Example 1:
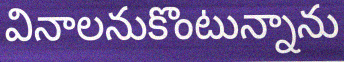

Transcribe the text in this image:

వినాలనుకొంటున్నాను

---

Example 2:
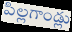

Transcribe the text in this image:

పిల్లగాండ్లు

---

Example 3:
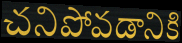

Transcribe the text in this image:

చనిపోవడానికి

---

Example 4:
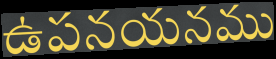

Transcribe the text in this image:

ఉపనయనము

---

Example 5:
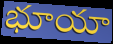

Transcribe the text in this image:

భూయా